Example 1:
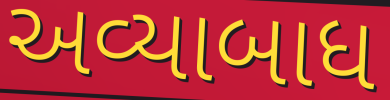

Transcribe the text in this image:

અવ્યાબાધ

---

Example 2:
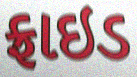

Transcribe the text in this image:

ફ્રાઇડ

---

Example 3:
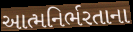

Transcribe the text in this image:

આત્મનિર્ભરતાના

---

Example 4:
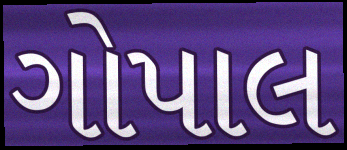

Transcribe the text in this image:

ગોપાલ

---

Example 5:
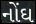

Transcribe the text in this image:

નોંઘ